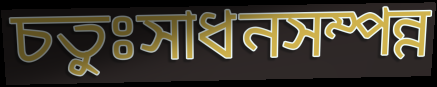
চতুঃসাধনসম্পন্ন